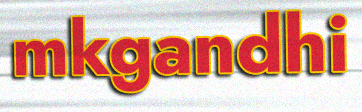
mkgandhi